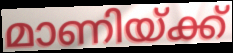
മാണിയ്ക്ക്